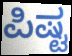
ಪಿಷ್ಟ